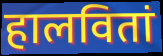
हालवितां